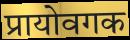
प्रायोवगक